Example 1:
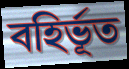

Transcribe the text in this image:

বহিৰ্ভূত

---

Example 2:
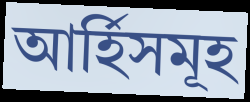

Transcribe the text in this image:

আৰ্হিসমূহ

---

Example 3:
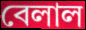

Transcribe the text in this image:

বেলাল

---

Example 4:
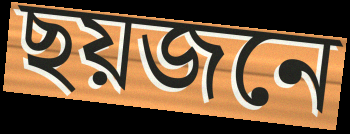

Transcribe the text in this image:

ছয়জনে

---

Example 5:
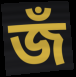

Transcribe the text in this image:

জঁ